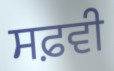
ਸਫ਼ਵੀ